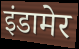
इंडामेर